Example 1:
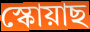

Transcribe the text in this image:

স্কোয়াছ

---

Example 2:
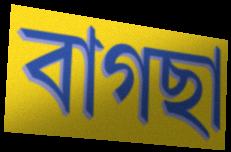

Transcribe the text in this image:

বাগছা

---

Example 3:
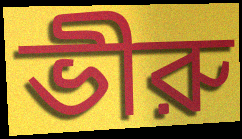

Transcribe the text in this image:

ভীৰু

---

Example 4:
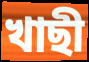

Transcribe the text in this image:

খাছী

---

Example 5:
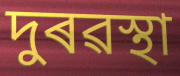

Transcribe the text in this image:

দুৰৱস্থা